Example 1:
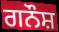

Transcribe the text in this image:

ਗਨੌਸ਼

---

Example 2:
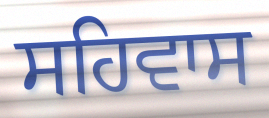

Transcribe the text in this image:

ਸਹਿਵਾਸ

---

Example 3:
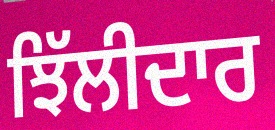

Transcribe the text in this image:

ਝਿੱਲੀਦਾਰ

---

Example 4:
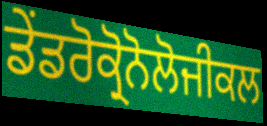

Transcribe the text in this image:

ਡੇਂਡਰੋਕ੍ਰੋਨੋਲੋਜੀਕਲ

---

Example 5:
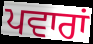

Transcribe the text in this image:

ਪਵਾਰਾਂ